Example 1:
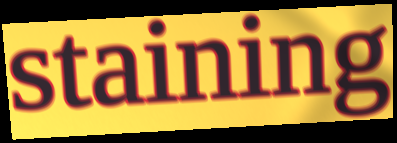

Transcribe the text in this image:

staining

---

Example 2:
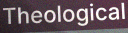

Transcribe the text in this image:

Theological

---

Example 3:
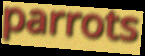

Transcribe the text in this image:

parrots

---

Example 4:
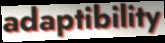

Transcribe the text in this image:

adaptibility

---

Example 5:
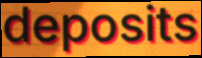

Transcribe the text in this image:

deposits